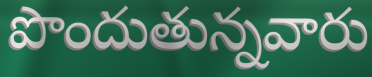
పొందుతున్నవారు